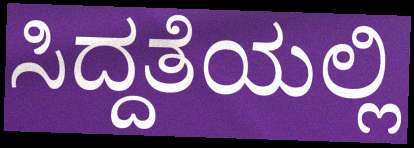
ಸಿದ್ದತೆಯಲ್ಲಿ